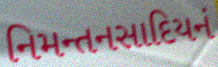
નિમન્તનસાદિયનં